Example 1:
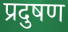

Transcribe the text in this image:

प्रदुषण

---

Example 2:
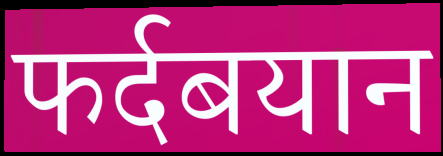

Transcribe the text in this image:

फर्दबयान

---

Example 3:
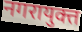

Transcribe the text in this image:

नगरायुक्त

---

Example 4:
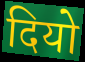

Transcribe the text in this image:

दियो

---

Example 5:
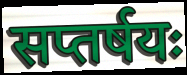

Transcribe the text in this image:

सप्तर्षयः